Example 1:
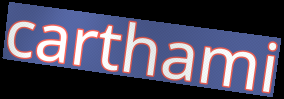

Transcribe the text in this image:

carthami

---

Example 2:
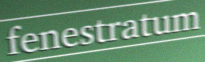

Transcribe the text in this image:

fenestratum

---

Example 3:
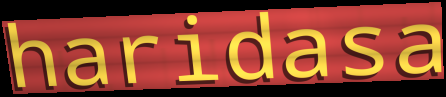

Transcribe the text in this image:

haridasa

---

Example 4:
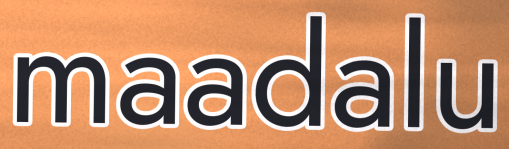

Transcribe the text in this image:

maadalu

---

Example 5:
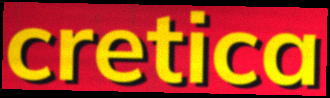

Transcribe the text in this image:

cretica